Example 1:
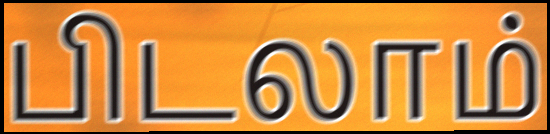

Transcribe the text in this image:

பிடலாம்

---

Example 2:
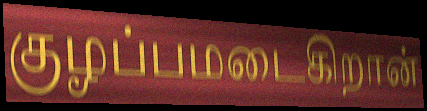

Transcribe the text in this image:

குழப்பமடைகிறான்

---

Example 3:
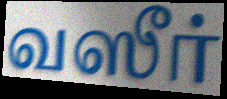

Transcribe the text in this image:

வஸீர்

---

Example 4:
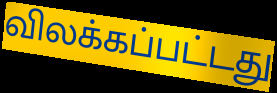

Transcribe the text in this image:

விலக்கப்பட்டது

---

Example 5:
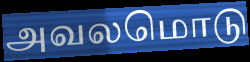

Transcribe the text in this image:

அவலமொடு